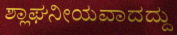
ಶ್ಲಾಘನೀಯವಾದದ್ದು